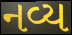
નવ્ય